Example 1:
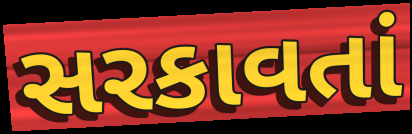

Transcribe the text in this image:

સરકાવતાં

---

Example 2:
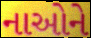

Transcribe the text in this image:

નાઓને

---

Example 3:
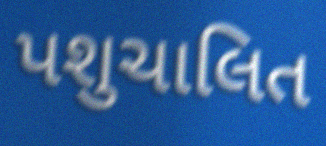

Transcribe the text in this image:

પશુચાલિત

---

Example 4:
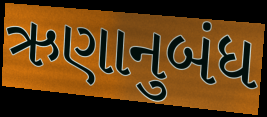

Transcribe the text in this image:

ઋણાનુબંધ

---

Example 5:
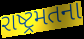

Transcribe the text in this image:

રાષ્ટ્રમતના